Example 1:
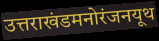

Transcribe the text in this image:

उत्तराखंडमनोरंजनयूथ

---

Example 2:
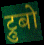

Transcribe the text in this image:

ट्रुबो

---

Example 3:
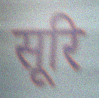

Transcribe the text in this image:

सूरि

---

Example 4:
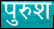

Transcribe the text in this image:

पुरुश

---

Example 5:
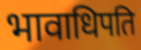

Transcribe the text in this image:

भावाधिपति